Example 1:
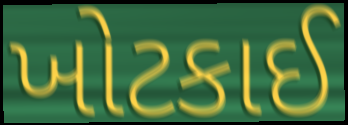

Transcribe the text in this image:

ખોટકાઈ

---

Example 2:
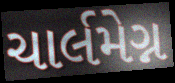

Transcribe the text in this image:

ચાર્લમેગ્ન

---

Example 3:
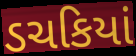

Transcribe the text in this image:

ડચકિયાં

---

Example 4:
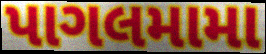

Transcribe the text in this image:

પાગલમામા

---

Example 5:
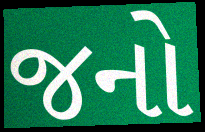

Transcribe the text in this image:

જનો